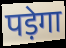
पड़ेगा